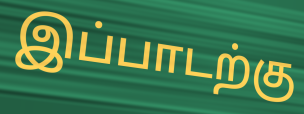
இப்பாடற்கு